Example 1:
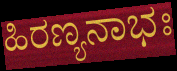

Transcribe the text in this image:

ಹಿರಣ್ಯನಾಭಃ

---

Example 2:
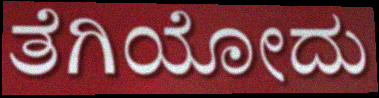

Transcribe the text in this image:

ತೆಗಿಯೋದು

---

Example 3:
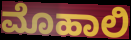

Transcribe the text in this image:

ಮೊಹಾಲಿ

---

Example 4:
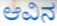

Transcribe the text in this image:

ಆವಿನ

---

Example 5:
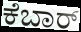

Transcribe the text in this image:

ಕೆಬಾರ್